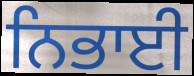
ਨਿਭਾਈ